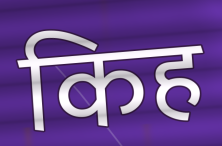
किह